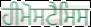
ਹੀਮੋਸਟੈਸਿਸ